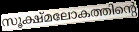
സൂക്ഷ്മലോകത്തിന്റെ